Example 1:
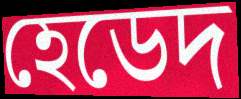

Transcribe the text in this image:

হেডেদ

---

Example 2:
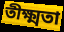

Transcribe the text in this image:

তীক্ষ্মতা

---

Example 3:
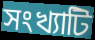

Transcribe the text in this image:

সংখ্যাটি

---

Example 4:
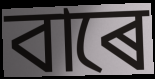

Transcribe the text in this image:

বাৰে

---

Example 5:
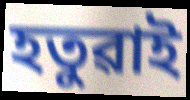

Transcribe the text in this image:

হতুৱাই